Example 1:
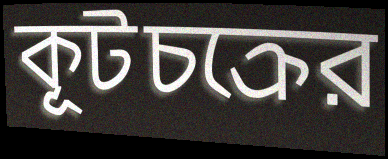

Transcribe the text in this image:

কূটচক্রের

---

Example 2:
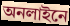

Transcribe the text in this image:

অনলাইনে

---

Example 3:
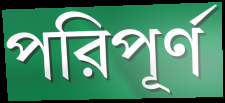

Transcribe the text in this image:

পরিপূর্ণ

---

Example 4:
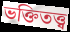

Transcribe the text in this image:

ভক্তিতত্ত্ব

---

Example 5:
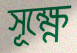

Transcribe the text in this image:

সূক্ষ্ণে